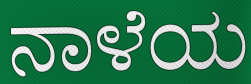
ನಾಳೆಯ